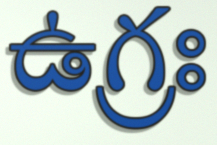
ఉగ్రః